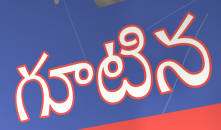
గూటిన